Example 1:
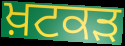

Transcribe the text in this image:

ਖ਼ਟਕੜ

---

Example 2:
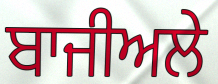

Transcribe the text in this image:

ਬਾਜੀਅਲੇ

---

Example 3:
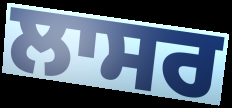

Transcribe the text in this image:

ਲਾਸਰ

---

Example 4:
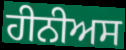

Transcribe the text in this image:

ਹੀਨੀਅਸ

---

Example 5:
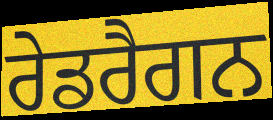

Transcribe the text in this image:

ਰੇਡਰੈਗਨ